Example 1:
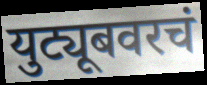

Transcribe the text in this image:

युट्यूबवरचं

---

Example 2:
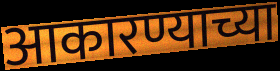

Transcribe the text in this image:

आकारण्याच्या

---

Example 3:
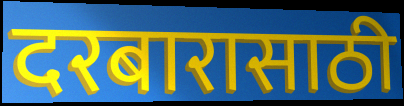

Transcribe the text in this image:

दरबारासाठी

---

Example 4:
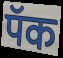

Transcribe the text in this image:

पॅक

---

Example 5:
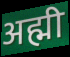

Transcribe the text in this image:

अह्मी